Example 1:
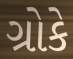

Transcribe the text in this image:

ગ્રોકે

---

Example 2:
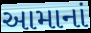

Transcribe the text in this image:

આમાનાં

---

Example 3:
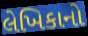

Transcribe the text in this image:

લેખિકાનો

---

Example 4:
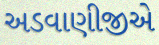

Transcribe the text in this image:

અડવાણીજીએ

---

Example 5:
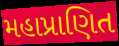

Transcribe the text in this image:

મહાપ્રાણિત